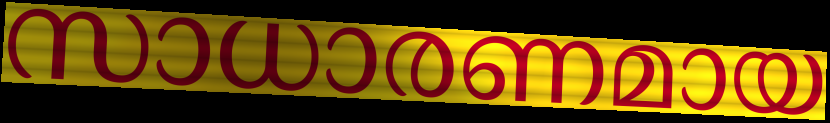
സാധാരണമായ